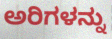
ಅರಿಗಳನ್ನು